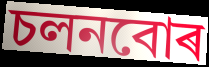
চলনবোৰ